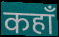
कहॉँ